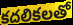
కదలికలతో